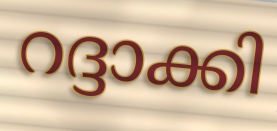
റദ്ദാക്കി